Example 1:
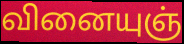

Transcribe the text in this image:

வினையுஞ்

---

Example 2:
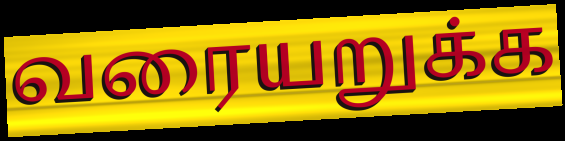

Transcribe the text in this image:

வரையறுக்க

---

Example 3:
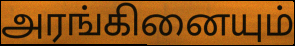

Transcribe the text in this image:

அரங்கினையும்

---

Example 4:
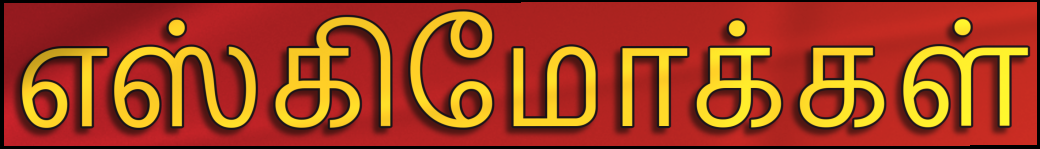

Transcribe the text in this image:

எஸ்கிமோக்கள்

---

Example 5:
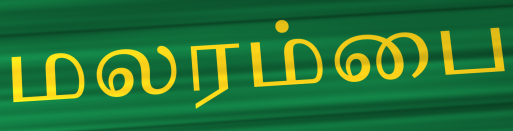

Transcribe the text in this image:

மலரம்பை